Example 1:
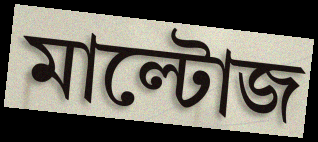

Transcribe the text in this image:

মাল্টোজ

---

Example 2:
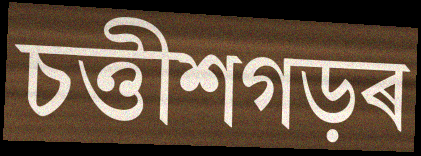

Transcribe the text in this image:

চত্তীশগড়ৰ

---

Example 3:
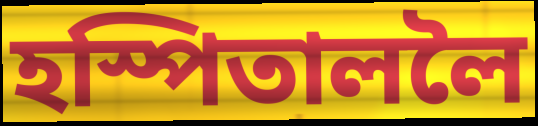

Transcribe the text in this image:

হস্পিতাললৈ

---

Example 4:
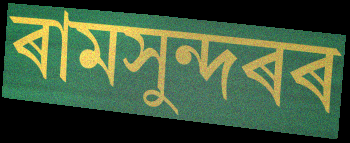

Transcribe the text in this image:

ৰামসুন্দৰৰ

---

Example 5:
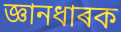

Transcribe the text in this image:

জ্ঞানধাৰক